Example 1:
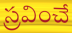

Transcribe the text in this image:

స్రవించే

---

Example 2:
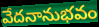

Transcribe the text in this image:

వేదనానుభవం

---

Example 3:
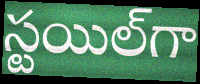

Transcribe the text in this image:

స్టయిల్‌గా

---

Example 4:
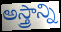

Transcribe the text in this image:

అస్త్రాన్ని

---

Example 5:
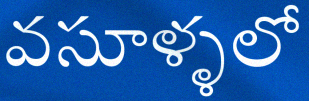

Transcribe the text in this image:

వసూళ్ళలో